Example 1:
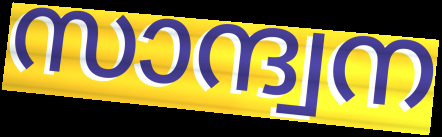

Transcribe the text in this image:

സാന്ദ്വന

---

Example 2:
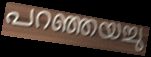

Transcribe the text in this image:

പറഞ്ഞയച്ചു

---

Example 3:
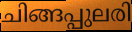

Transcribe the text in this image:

ചിങ്ങപ്പുലരി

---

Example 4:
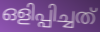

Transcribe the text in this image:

ഒളിപ്പിച്ചത്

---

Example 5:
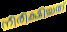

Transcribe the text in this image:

നീരീക്ഷിച്ചത്